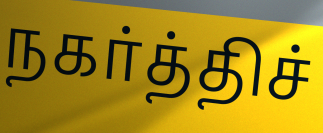
நகர்த்திச்